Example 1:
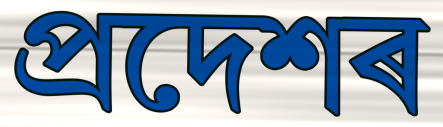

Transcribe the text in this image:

প্ৰদেশৰ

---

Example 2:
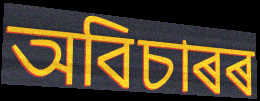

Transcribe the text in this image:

অবিচাৰৰ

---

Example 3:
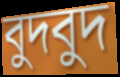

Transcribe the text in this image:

বুদবুদ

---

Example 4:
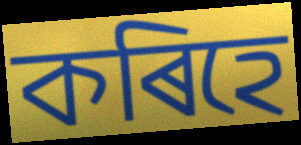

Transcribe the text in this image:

কৰিহে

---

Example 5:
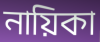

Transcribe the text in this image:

নায়িকা